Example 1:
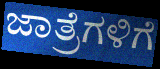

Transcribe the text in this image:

ಜಾತ್ರೆಗಳಿಗೆ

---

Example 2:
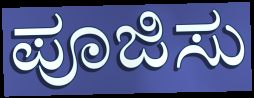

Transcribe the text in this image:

ಪೂಜಿಸು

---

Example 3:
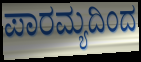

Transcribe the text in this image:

ಪಾರಮ್ಯದಿಂದ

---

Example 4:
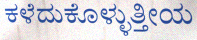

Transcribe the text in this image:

ಕಳೆದುಕೊಳ್ಳುತ್ತೀಯ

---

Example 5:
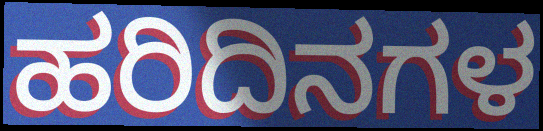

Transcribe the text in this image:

ಹರಿದಿನಗಳ